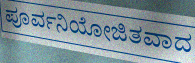
ಪೂರ್ವನಿಯೋಜಿತವಾದ